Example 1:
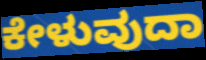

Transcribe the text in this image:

ಕೇಳುವುದಾ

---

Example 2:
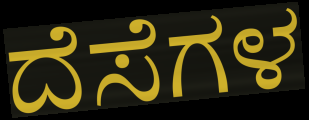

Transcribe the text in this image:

ದೆಸೆಗಳ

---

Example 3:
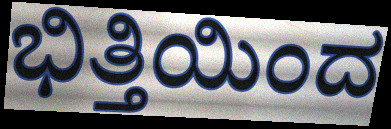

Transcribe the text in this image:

ಭಿತ್ತಿಯಿಂದ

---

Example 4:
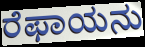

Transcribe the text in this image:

ರೆಫಾಯನು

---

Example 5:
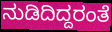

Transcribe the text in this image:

ನುಡಿದಿದ್ದರಂತೆ